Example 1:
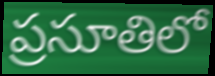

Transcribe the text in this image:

ప్రసూతిలో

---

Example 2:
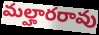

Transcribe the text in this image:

మల్హారరావు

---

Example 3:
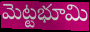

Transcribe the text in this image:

మెట్టభూమి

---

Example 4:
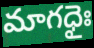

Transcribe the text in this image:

మాగధైః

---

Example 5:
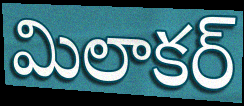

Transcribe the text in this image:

మిలాకర్